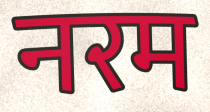
नरम